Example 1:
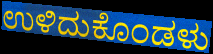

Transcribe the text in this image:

ಉಳಿದುಕೊಂಡಳು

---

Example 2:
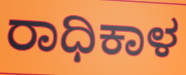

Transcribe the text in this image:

ರಾಧಿಕಾಳ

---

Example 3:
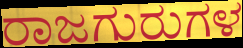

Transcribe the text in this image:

ರಾಜಗುರುಗಳ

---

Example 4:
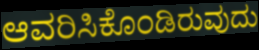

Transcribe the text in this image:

ಆವರಿಸಿಕೊಂಡಿರುವುದು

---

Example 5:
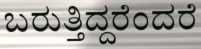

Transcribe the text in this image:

ಬರುತ್ತಿದ್ದರೆಂದರೆ